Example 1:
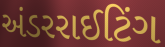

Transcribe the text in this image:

અંડરરાઈટિંગ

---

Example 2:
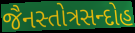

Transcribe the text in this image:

જૈનસ્તોત્રસન્દોહ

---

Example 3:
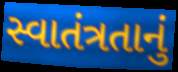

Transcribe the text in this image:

સ્વાતંત્રતાનું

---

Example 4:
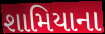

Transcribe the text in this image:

શામિયાના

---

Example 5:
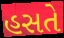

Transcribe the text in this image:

હસતે